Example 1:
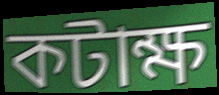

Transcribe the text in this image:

কটাক্ষ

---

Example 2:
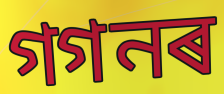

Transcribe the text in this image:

গগনৰ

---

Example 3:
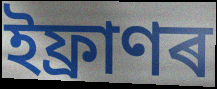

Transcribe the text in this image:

ইফ্ৰাণৰ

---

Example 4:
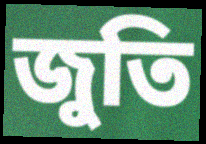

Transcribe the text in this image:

জুতি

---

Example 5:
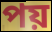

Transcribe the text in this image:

পয়